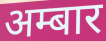
अम्बार